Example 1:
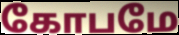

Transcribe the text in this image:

கோபமே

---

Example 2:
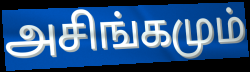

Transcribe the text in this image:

அசிங்கமும்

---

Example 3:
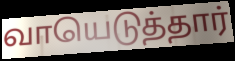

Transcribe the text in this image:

வாயெடுத்தார்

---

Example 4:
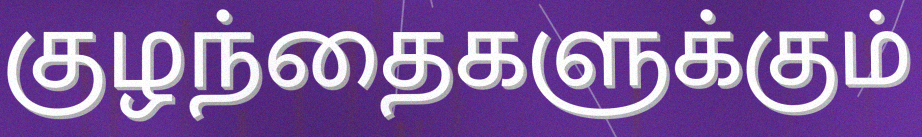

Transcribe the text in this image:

குழந்தைகளுக்கும்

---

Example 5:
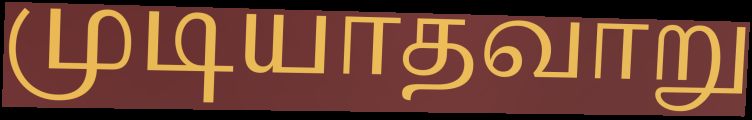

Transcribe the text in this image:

முடியாதவாறு